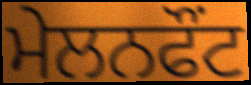
ਮੇਲਨਫੌਂਟ